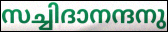
സച്ചിദാനന്ദനു